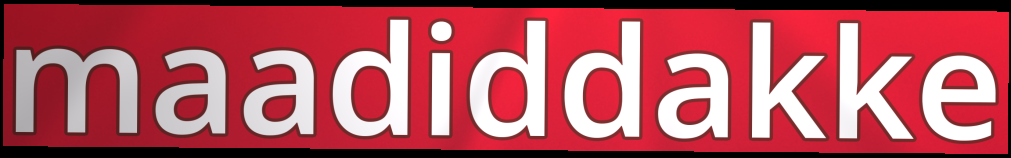
maadiddakke